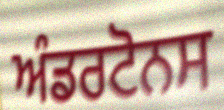
ਅੰਡਰਟੋਨਸ